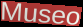
Museo